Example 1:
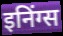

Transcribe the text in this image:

इनिंग्स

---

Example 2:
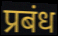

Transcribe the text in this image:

प्रबंध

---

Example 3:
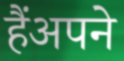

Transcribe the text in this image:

हैंअपने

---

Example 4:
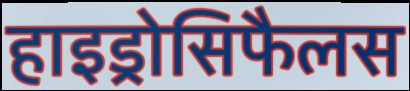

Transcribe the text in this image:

हाइड्रोसिफैलस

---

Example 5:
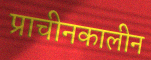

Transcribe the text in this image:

प्राचीनकालीन